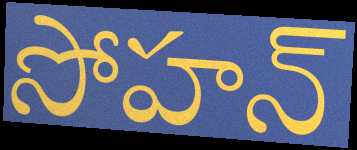
సోహన్